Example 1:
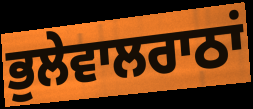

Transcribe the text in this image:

ਭੁਲੇਵਾਲਰਾਠਾਂ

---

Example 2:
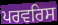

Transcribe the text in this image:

ਪਰਵਰਿਸ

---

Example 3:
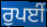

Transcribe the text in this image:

ਰੁਪਈਂ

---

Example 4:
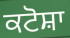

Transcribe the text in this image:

ਕਟੋਸ਼ਾ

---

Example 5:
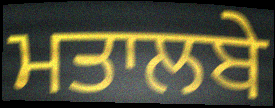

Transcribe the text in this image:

ਮਤਾਲਬੇ